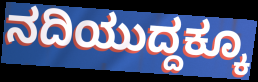
ನದಿಯುದ್ದಕ್ಕೂ